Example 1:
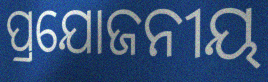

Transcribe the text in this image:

ପ୍ରଯୋଜନୀୟ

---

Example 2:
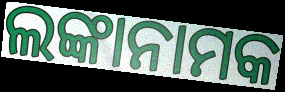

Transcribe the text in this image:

ଲଙ୍କାନାମକ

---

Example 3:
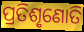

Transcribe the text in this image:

ପ୍ରତିଶୃଣୋତି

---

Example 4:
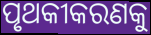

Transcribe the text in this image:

ପୃଥକୀକରଣକୁ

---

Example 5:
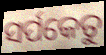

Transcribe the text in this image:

ସର୍ପକେତୁ